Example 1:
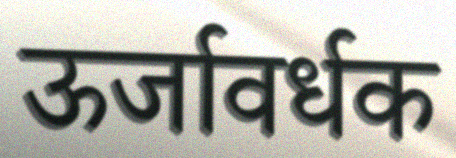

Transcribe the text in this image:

ऊर्जावर्धक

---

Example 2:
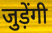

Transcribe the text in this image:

जुड़ेंगी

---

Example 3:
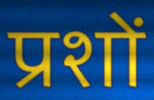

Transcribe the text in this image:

प्रशों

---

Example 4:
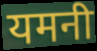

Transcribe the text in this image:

यमनी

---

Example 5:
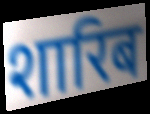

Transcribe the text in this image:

शारिब